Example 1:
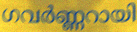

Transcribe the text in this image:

ഗവർണ്ണറായി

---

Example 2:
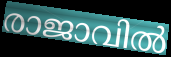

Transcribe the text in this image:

രാജാവിൽ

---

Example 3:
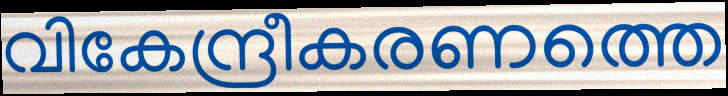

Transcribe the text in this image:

വികേന്ദ്രീകരണത്തെ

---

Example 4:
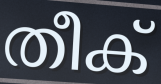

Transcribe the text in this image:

തീക്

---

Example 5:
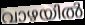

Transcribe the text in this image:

വാഴയിൽ